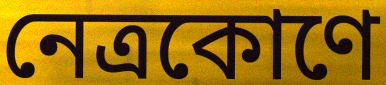
নেত্রকোণে